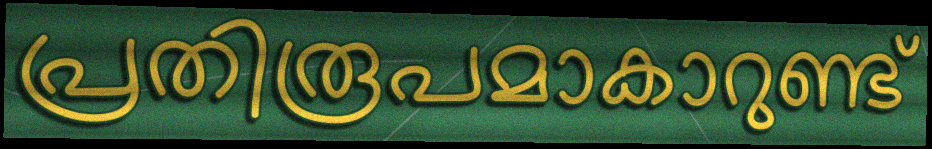
പ്രതിരൂപമാകാറുണ്ട്